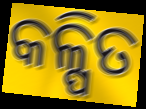
କଳ୍ପିତ